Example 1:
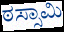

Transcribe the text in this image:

ಠಸ್ಸಾಮಿ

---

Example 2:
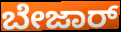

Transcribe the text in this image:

ಬೇಜಾರ್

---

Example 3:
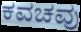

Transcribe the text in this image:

ಕವಚವು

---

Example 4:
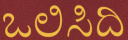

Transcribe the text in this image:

ಒಲಿಸಿದಿ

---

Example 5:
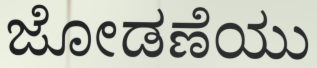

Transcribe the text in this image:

ಜೋಡಣೆಯು